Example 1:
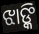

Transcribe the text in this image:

ଝାଙ୍କି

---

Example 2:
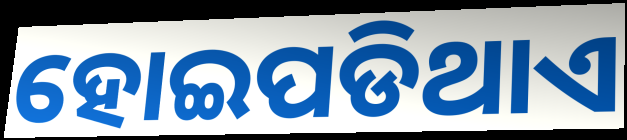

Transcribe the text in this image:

ହୋଇପଡିଥାଏ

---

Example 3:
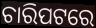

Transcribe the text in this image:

ଚାରିପଟରେ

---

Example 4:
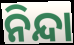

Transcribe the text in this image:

ନିନ୍ଦା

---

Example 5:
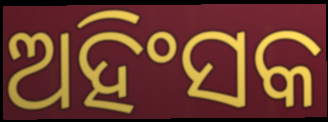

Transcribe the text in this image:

ଅହିଂସକ